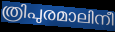
ത്രിപുരമാലിനീ